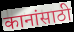
कानांसाठी